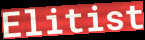
Elitist